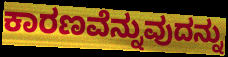
ಕಾರಣವೆನ್ನುವುದನ್ನು